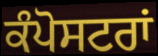
ਕੰਪੋਸਟਰਾਂ